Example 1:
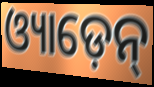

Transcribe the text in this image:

ଓ୍ୟାଡ଼େନ୍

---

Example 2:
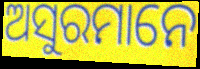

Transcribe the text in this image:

ଅସୁରମାନେ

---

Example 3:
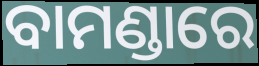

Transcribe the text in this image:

ବାମଣ୍ଡାରେ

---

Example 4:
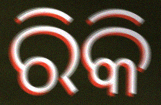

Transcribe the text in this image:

ରିକି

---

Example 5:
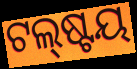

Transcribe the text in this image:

ଟଲ୍ଷ୍ଟୟ